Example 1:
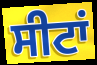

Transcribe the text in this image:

ਸੀਟਾਂ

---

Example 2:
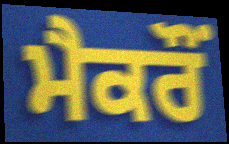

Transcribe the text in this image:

ਮੈਕਰੌਂ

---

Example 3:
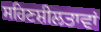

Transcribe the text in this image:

ਸਹਿਣਸ਼ੀਲਤਾਵਾਂ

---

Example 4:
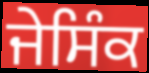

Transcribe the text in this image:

ਜੇਸਿੰਕ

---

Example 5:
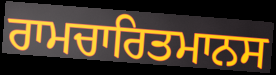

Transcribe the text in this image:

ਰਾਮਚਾਰਿਤਮਾਨਸ